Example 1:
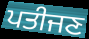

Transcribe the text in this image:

ਪਤੀਜਣ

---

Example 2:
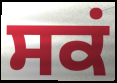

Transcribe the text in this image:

ਸਕਂ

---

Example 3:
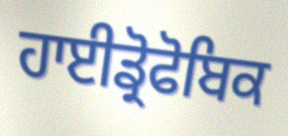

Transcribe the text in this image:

ਹਾਈਡ੍ਰੋਫੋਬਿਕ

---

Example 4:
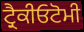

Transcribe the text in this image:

ਟ੍ਰੈਕੀਓਟੋਮੀ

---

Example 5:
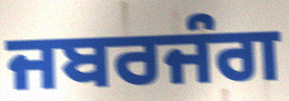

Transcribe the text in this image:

ਜਬਰਜੰਗ